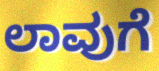
ಲಾವುಗೆ